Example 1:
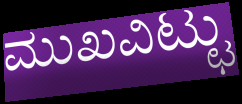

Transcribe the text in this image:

ಮುಖವಿಟ್ಟು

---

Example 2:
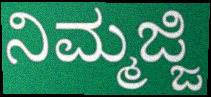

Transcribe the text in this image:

ನಿಮ್ಮಜ್ಜಿ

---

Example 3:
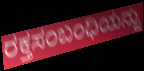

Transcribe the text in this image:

ರಕ್ತಸಂಬಂಧಿಯನ್ನು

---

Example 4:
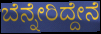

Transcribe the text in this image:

ಬೆನ್ನೇರಿದ್ದೇನೆ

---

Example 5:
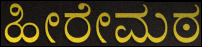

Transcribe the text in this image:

ಹೀರೇಮಠ